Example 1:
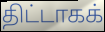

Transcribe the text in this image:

திட்டாகக்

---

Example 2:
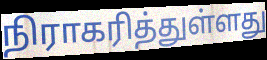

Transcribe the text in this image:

நிராகரித்துள்ளது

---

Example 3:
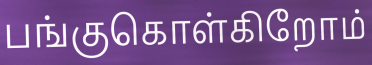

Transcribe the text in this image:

பங்குகொள்கிறோம்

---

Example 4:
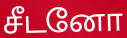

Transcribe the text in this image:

சீடனோ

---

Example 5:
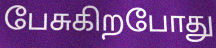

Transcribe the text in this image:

பேசுகிறபோது